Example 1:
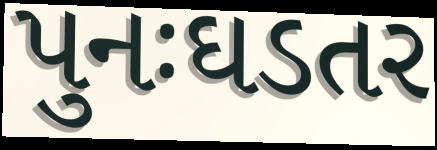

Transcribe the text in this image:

પુનઃઘડતર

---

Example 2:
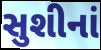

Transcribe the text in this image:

સુશીનાં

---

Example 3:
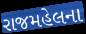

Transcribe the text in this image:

રાજમહેલના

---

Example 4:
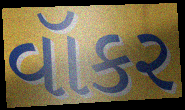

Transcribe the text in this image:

વૉકર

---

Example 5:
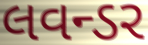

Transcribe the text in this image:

લવન્ડર